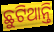
ଛୁଟିଥାନ୍ତି